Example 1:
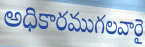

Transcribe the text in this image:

అధికారముగలవారై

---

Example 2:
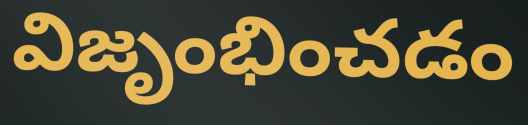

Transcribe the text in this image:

విజృంభించడం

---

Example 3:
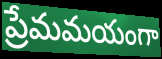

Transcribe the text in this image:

ప్రేమమయంగా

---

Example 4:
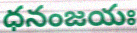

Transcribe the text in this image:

ధనంజయః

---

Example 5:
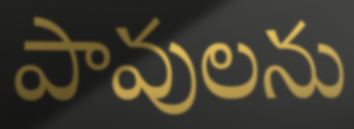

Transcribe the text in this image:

పావులను